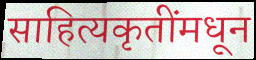
साहित्यकृतींमधून